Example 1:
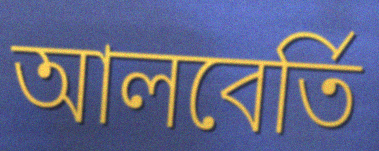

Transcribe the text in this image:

আলবের্তি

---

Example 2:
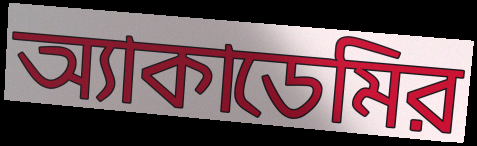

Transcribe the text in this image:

অ্যাকাডেমির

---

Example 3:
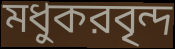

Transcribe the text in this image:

মধুকরবৃন্দ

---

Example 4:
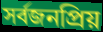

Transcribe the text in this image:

সর্বজনপ্রিয়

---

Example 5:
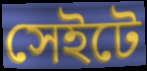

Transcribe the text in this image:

সেইটে